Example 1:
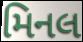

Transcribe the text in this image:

મિનલ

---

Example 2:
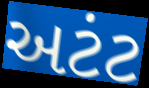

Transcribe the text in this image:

અટંટ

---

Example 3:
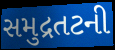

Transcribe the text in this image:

સમુદ્રતટની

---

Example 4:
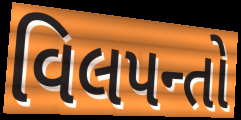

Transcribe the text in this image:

વિલપન્તો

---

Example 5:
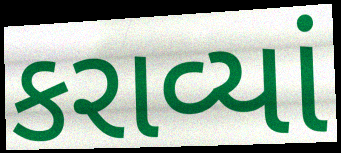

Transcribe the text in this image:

કરાવ્યાં